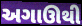
અગાઊથી